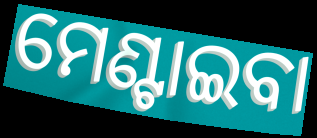
ମେଣ୍ଟାଇବା